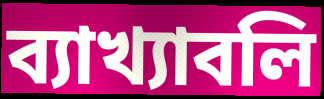
ব্যাখ্যাবলি